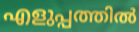
എളുപ്പത്തിൽ